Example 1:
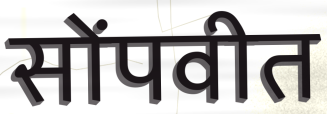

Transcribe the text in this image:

सोंपवीत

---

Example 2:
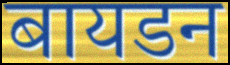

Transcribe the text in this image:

बायडन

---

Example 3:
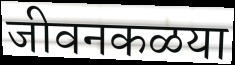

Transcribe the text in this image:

जीवनकळया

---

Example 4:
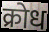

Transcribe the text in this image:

क्रोध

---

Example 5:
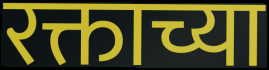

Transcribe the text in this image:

रक्ताच्या